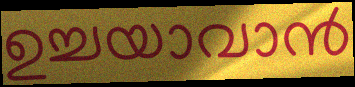
ഉച്ചയാവാൻ